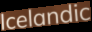
Icelandic